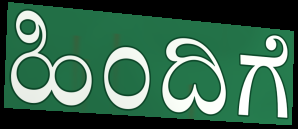
ಹಿಂದಿಗೆ